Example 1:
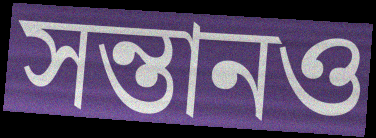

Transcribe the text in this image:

সন্তানও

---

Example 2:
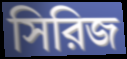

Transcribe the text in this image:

সিরিজ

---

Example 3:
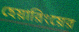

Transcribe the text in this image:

হেয়ারিংয়ের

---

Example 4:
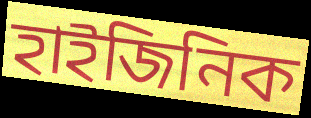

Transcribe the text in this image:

হাইজিনিক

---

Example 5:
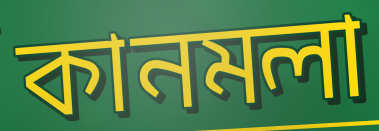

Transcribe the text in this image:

কানমলা